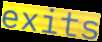
exits